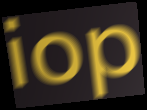
iop